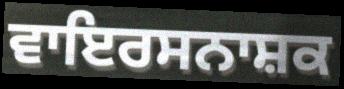
ਵਾਇਰਸਨਾਸ਼ਕ